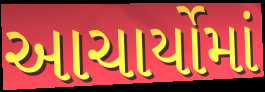
આચાર્યોમાં